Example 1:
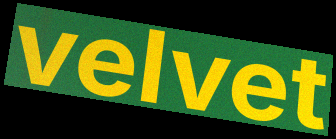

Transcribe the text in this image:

velvet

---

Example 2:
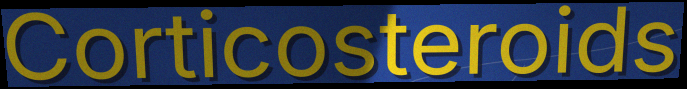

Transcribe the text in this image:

Corticosteroids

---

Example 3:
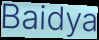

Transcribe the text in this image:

Baidya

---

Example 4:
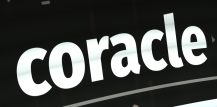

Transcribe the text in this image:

coracle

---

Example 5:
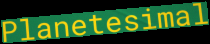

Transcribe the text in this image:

Planetesimal